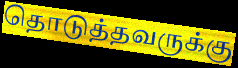
தொடுத்தவருக்கு